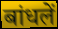
बांधलें